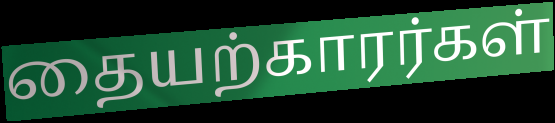
தையற்காரர்கள்